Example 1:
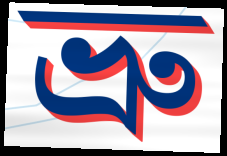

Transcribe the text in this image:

ভ্রু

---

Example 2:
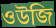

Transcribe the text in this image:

ওউজি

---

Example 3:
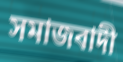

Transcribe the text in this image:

সমাজবাদী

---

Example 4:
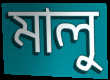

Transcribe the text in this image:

মালু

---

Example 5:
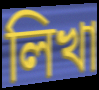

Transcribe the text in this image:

লিখা